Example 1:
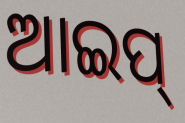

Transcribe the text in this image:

ଆଇପ୍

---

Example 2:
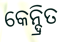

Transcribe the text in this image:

କେନ୍ଦ୍ରିତ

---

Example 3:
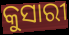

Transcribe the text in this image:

କୁସାରୀ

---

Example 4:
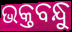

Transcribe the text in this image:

ଭକ୍ତବନ୍ଧୁ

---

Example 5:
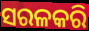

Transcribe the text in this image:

ସରଳକରି